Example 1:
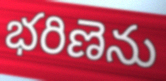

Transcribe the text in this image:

భరిణెను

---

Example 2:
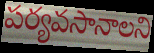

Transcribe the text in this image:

పర్యవసానాలని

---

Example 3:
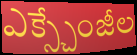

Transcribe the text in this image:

ఎక్స్చేంజీల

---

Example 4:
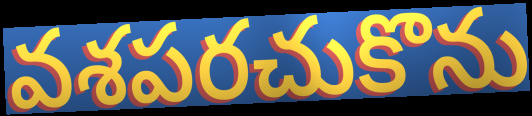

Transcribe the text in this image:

వశపరచుకొను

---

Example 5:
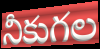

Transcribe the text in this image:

నీకుగల